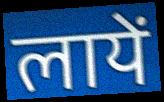
लायें